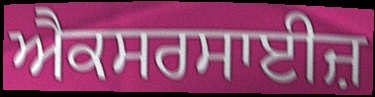
ਐਕਸਰਸਾਈਜ਼